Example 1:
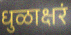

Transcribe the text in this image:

धुळाक्षरं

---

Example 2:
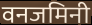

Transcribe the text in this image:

वनजमिनी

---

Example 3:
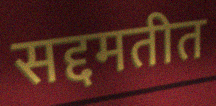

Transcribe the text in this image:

सद्दमतीत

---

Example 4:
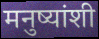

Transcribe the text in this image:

मनुष्यांशी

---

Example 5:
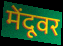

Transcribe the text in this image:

मेंदूवर